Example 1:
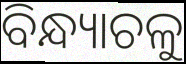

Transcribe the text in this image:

ବିନ୍ଧ୍ୟାଚଳୁ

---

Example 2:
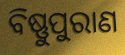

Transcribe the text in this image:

ବିଷ୍ଣୁପୁରାଣ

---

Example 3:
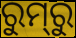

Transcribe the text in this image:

ରୁମ୍‌ରୁ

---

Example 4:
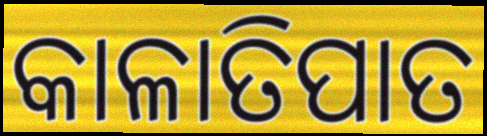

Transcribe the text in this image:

କାଳାତିପାତ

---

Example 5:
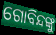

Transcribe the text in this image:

ଗୋବିନ୍ଦଙ୍କୁ